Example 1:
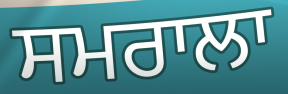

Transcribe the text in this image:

ਸਮਰਾਲਾ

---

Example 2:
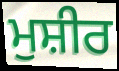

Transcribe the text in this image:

ਮੁਸ਼ੀਰ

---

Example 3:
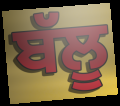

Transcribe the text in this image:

ਬੱਲੂ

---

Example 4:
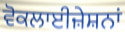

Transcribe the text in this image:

ਵੋਕਲਾਈਜ਼ੇਸ਼ਨਾਂ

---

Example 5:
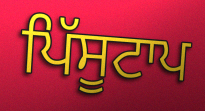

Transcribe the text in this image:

ਪਿੱਸੂਟਾਪ